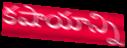
కషాయాన్ని